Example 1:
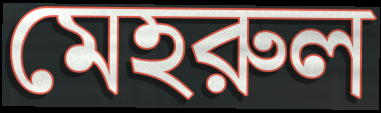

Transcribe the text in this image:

মেহরুল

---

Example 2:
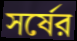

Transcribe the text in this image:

সর্ষের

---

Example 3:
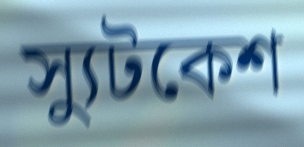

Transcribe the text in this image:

স্যুটকেশ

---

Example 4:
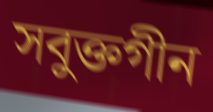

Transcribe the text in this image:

সবুক্তগীন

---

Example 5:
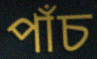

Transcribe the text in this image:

পাঁচ